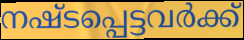
നഷ്ടപ്പെട്ടവർക്ക്